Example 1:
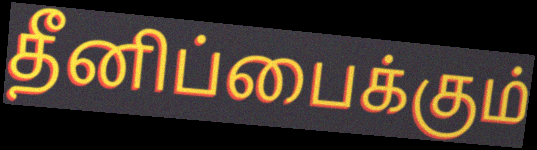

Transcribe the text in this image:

தீனிப்பைக்கும்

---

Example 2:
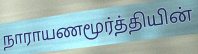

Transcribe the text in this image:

நாராயணமூர்த்தியின்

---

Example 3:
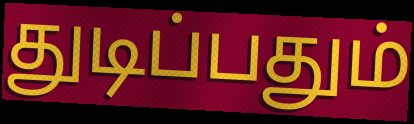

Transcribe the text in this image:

துடிப்பதும்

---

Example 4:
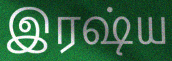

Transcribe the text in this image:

இரஷ்ய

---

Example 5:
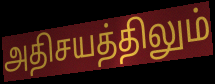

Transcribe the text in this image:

அதிசயத்திலும்